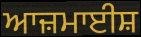
ਆਜ਼ਮਾਈਸ਼